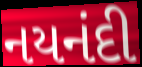
નયનંદી